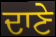
ਦਾਣੇ